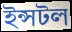
ইন্সটল